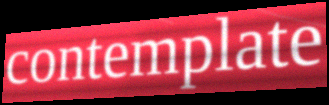
contemplate